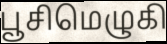
பூசிமெழுகி